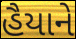
હૈયાને